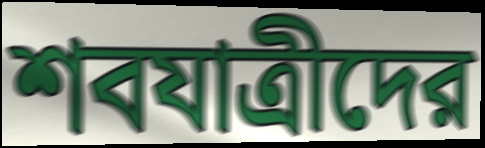
শবযাত্রীদের